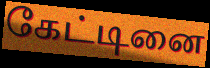
கேட்டினை